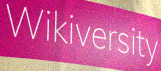
Wikiversity